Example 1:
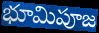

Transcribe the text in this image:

భూమిపూజ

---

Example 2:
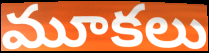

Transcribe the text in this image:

మూకలు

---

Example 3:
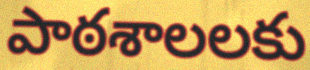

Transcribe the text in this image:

పాఠశాలలకు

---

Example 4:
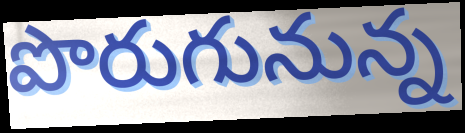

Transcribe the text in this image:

పొరుగునున్న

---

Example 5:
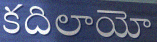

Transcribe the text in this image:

కదిలాయో